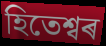
হিতেশ্বৰ